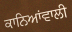
ਕਾਨਿਆਂਵਾਲੀ